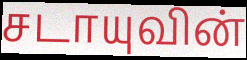
சடாயுவின்